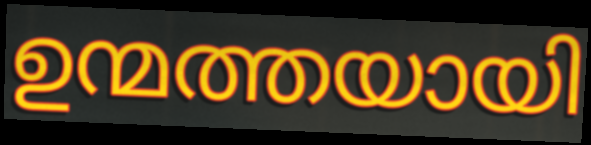
ഉന്മത്തയായി